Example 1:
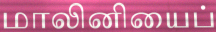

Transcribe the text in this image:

மாலினியைப்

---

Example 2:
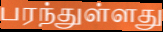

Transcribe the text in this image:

பரந்துள்ளது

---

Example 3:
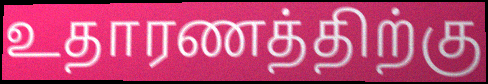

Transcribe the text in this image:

உதாரணத்திற்கு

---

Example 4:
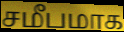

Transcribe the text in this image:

சமீபமாக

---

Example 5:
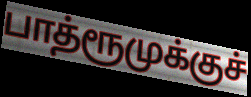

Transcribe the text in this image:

பாத்ரூமுக்குச்